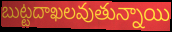
బుట్టదాఖలవుతున్నాయి